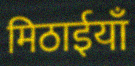
मिठाईयाँ